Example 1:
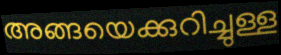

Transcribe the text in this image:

അങ്ങയെക്കുറിച്ചുള്ള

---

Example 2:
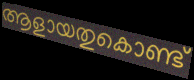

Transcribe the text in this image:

ആളായതുകൊണ്ട്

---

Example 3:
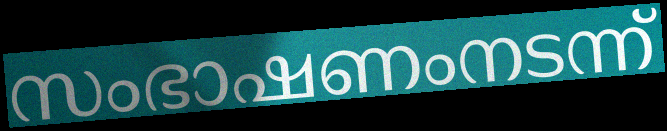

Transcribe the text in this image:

സംഭാഷണംനടന്ന്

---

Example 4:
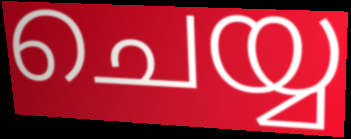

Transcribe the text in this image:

ചെയ്യ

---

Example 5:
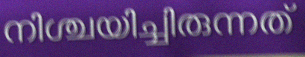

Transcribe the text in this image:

നിശ്ചയിച്ചിരുന്നത്